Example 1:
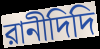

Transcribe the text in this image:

রানীদিদি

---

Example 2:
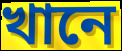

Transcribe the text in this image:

খানে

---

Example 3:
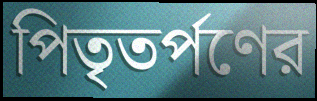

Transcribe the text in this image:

পিতৃতর্পণের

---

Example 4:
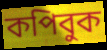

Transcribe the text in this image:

কপিবুক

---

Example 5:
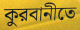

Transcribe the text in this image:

কুরবানীতে